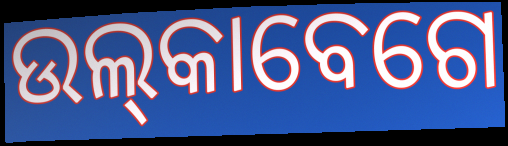
ଉଲ୍‌କାବେଗେ